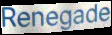
Renegade